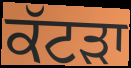
ਕੱਟੜਾ